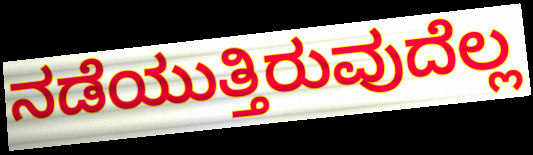
ನಡೆಯುತ್ತಿರುವುದೆಲ್ಲ